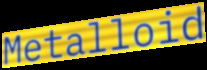
Metalloid